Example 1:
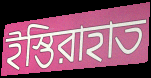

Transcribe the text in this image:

ইস্তিরাহাত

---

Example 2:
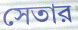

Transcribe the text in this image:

সেতার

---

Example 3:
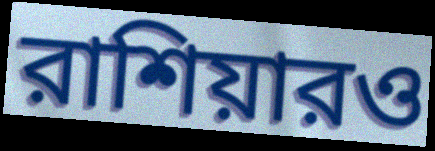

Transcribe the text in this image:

রাশিয়ারও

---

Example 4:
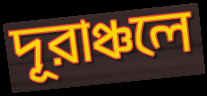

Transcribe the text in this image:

দূরাঞ্চলে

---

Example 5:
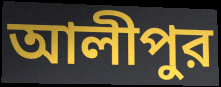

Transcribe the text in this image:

আলীপুর